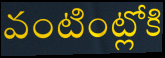
వంటింట్లోకి